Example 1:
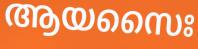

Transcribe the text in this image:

ആയസൈഃ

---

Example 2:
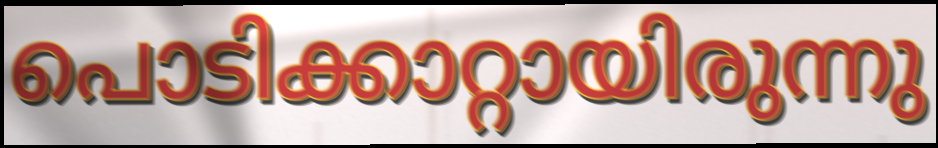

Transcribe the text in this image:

പൊടിക്കാറ്റായിരുന്നു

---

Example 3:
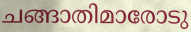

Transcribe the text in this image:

ചങ്ങാതിമാരോടു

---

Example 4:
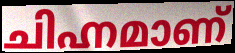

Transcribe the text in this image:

ചിഹ്നമാണ്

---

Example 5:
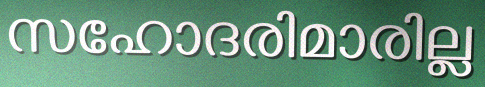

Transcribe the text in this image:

സഹോദരിമാരില്ല